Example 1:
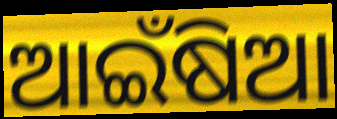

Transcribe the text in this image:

ଆଇଁଷିଆ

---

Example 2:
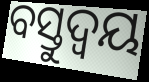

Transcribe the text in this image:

ବସ୍ତୁଦ୍ୱୟ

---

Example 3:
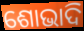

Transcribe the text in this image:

ଶୋଭାଦି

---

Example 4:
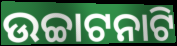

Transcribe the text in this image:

ଉଚ୍ଚାଟନାଟି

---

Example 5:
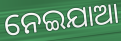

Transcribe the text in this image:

ନେଇଯାଆ